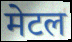
मेटल